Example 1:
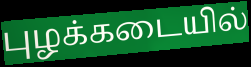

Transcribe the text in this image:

புழக்கடையில்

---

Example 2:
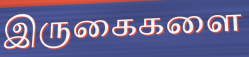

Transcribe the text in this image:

இருகைகளை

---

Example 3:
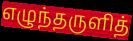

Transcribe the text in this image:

எழுந்தருளித்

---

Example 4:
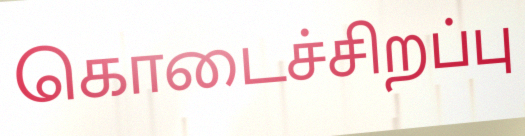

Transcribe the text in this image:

கொடைச்சிறப்பு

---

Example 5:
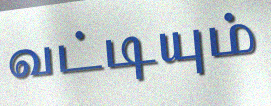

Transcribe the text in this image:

வட்டியும்